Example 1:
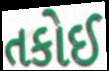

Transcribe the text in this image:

તકોઈ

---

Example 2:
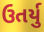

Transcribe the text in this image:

ઉતર્યુ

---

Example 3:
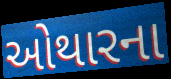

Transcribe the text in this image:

ઓથારના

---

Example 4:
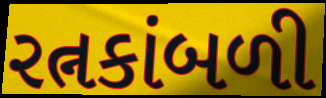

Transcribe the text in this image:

રત્નકાંબળી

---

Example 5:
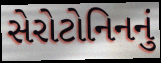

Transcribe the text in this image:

સેરોટોનિનનું